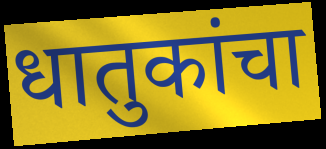
धातुकांचा